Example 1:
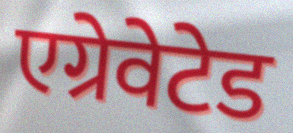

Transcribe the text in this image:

एग्रेवेटेड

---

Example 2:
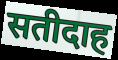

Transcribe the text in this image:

सतीदाह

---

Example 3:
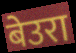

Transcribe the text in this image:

बेउरा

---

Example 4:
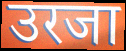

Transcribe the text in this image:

उरजा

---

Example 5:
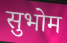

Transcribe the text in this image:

सुभोम